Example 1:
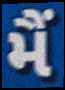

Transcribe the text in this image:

મૈં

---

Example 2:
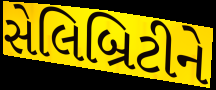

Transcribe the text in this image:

સેલિબ્રિટીને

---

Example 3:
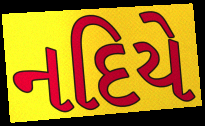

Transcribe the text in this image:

નદિયે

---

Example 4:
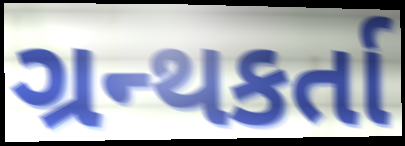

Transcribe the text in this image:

ગ્રન્થકર્તા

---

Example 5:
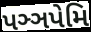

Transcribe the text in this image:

પઞ્ઞપેમિ